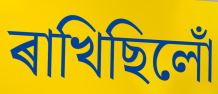
ৰাখিছিলোঁ